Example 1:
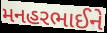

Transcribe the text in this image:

મનહરભાઈને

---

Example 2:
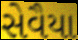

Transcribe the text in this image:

સેવૈયા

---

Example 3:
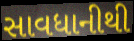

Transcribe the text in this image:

સાવધાનીથી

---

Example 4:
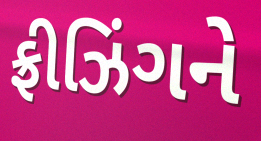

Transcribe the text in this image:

ફ્રીઝિંગને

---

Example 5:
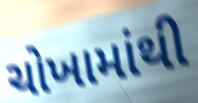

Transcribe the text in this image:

ચોખામાંથી